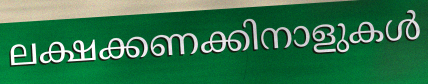
ലക്ഷക്കണക്കിനാളുകൾ